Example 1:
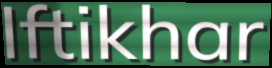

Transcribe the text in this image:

Iftikhar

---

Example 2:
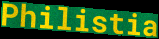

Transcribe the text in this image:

Philistia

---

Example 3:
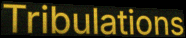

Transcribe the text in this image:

Tribulations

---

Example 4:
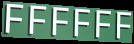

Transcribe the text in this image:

FFFFFF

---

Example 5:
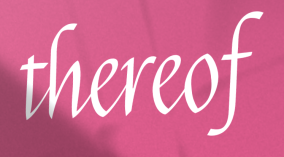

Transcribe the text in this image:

thereof